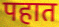
पहात